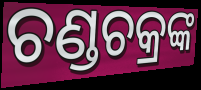
ଚଣ୍ଡଚକ୍ରଙ୍କ